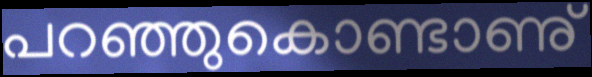
പറഞ്ഞുകൊണ്ടാണു്